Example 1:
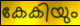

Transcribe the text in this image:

കേകിയും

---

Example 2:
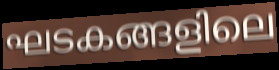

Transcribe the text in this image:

ഘടകങ്ങളിലെ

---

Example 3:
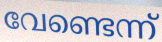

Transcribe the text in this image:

വേണ്ടെന്ന്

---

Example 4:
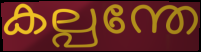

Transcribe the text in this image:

കല്പന്തേ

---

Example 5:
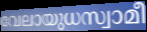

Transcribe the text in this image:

വേലായുധസ്വാമീ